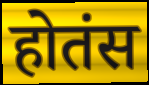
होतंस